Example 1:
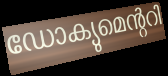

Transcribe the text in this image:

ഡോക്യുമെന്ററി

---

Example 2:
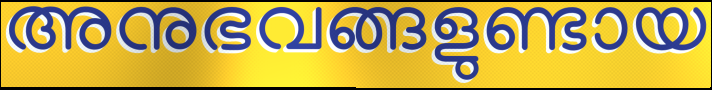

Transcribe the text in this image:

അനുഭവങ്ങളുണ്ടായ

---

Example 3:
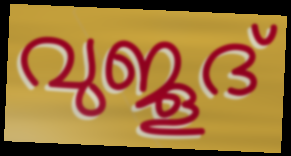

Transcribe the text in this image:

വുജൂദ്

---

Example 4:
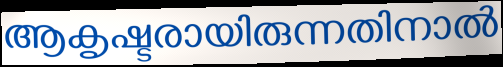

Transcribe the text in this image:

ആകൃഷ്ടരായിരുന്നതിനാൽ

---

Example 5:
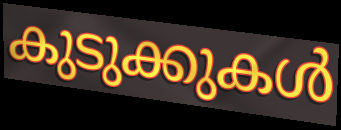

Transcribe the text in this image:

കുടുക്കുകൾ